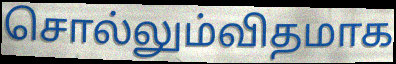
சொல்லும்விதமாக